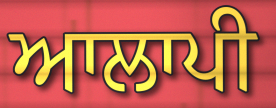
ਆਲਾਪੀ